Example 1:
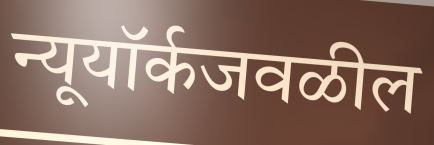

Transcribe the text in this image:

न्यूयॉर्कजवळील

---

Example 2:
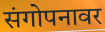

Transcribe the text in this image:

संगोपनावर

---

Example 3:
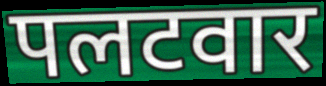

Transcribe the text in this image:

पलटवार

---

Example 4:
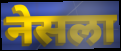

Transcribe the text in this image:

नेसला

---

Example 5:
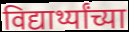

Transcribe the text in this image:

विद्यार्थ्यांच्या